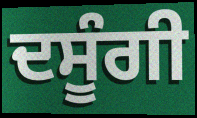
ਦਸੂੰਗੀ